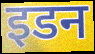
इडन